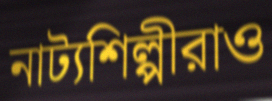
নাট্যশিল্পীরাও